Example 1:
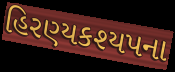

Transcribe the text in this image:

હિરણ્યકશ્યપના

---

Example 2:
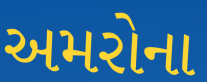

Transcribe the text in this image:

અમરોના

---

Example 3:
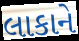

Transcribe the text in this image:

લાકાને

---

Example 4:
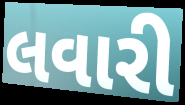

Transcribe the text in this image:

લવારી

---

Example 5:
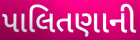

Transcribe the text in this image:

પાલિતણાની